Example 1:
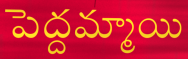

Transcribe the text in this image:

పెద్దమ్మాయి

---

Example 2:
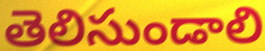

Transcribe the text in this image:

తెలిసుండాలి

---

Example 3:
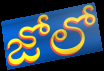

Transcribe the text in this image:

జోలో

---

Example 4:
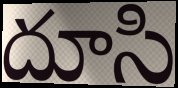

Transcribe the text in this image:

దూసి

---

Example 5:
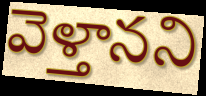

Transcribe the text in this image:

వెళ్తానని